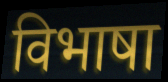
विभाषा